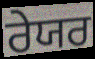
ਰੇਯਰ